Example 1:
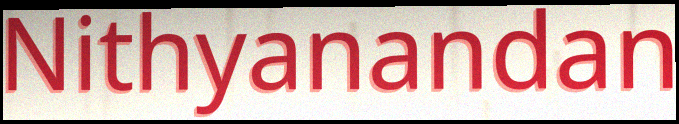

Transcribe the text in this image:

Nithyanandan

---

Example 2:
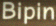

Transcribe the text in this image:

Bipin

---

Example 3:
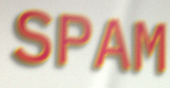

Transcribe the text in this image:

SPAM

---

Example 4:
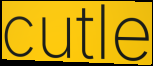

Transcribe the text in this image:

cutle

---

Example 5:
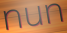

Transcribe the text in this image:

nun